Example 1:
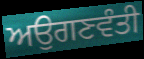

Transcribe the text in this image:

ਅਉਗਣਵੰਤੀ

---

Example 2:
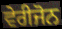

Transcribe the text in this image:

ਵੇਰੀਜੋਨ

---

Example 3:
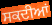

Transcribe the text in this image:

ਸਕਦੀਆਂ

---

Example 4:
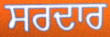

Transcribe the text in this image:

ਸਰਦਾਰ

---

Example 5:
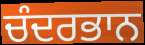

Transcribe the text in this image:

ਚੰਦਰਭਾਨ